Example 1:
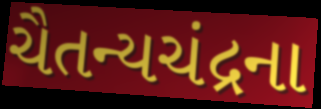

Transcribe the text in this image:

ચૈતન્યચંદ્રના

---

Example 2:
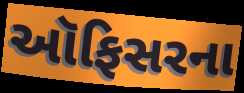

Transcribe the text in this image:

ઑફિસરના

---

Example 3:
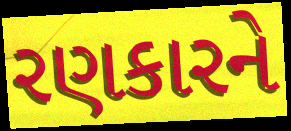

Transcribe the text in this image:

રણકારને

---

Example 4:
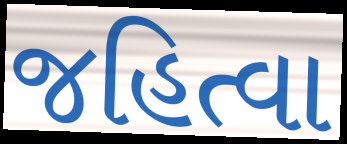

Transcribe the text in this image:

જહિત્વા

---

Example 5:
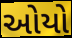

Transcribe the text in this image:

ઓયો